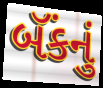
બૅંકનું